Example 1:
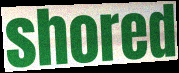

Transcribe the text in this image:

shored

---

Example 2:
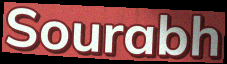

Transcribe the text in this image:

Sourabh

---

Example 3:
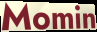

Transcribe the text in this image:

Momin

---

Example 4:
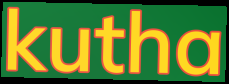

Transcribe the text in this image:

kutha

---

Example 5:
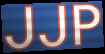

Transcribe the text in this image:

JJP